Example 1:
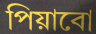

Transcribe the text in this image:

পিয়াবো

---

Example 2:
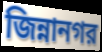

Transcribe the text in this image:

জিন্নানগর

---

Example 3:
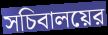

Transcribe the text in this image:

সচিবালয়ের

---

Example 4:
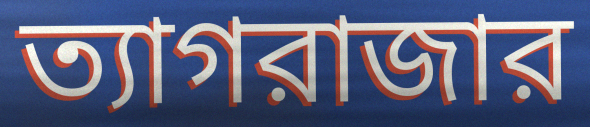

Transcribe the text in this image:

ত্যাগরাজার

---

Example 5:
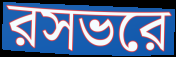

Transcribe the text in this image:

রসভরে